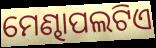
ମେଣ୍ଢାପଲଟିଏ